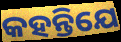
କହନ୍ତିଯେ